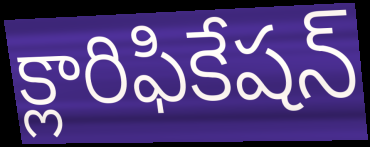
క్లారిఫికేషన్